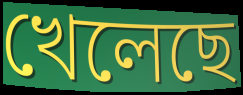
খেলেছে